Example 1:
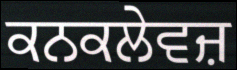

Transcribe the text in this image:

ਕਨਕਲੇਵਜ਼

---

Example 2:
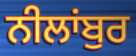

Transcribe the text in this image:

ਨੀਲਾਂਬੁਰ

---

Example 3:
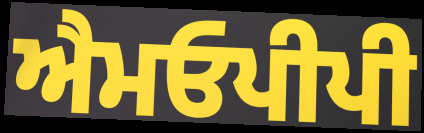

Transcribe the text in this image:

ਐਮਓਪੀਪੀ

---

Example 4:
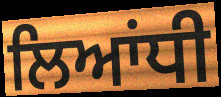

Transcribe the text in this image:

ਲਿਆਂਧੀ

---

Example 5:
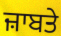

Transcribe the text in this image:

ਜ਼ਾਬਤੇ